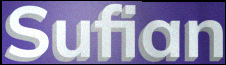
Sufian